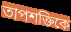
তাপশক্তিকে